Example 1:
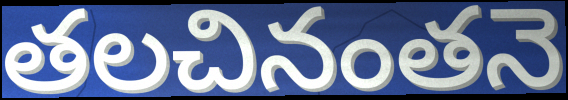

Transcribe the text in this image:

తలచినంతనె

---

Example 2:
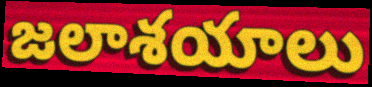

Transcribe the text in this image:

జలాశయాలు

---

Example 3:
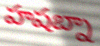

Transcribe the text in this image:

హషబ్నా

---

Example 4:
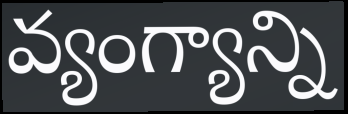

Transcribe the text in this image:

వ్యంగ్యాన్ని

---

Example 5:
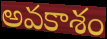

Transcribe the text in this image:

అవకాశం